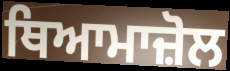
ਥਿਆਮਾਜ਼ੋਲ